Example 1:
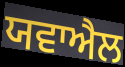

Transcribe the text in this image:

ਯਵਾਐਲ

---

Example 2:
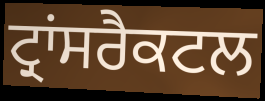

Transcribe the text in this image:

ਟ੍ਰਾਂਸਰੈਕਟਲ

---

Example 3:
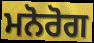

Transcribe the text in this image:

ਮਨੋਰੋਗ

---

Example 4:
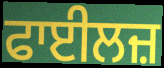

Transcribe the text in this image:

ਫਾਈਲਜ਼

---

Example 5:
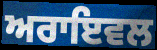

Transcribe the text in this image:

ਅਰਾਇਵਲ